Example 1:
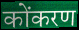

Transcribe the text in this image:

कोंकरण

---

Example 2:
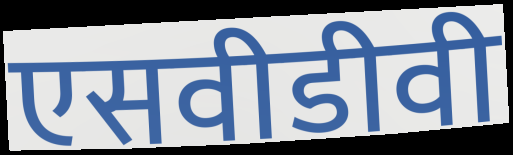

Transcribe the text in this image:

एसवीडीवी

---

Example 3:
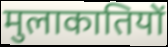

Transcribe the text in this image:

मुलाकातियों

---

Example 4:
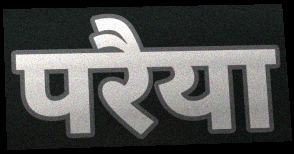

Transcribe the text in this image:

परैया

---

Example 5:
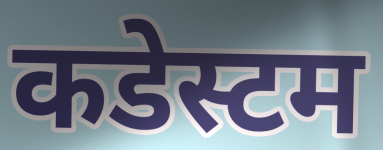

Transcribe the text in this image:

कडेस्टम